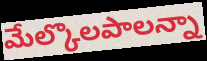
మేల్కొలపాలన్నా